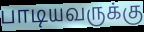
பாடியவருக்கு